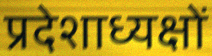
प्रदेशाध्यक्षों